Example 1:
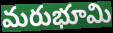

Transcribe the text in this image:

మరుభూమి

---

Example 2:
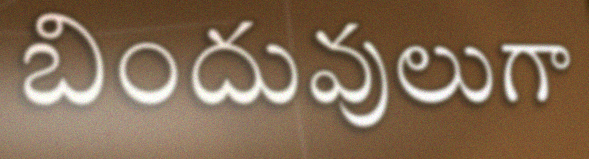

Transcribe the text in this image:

బిందువులుగా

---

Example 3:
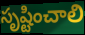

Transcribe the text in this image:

సృష్టించాలి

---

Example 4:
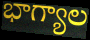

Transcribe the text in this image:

భాగ్యాల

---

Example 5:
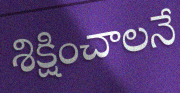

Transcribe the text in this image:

శిక్షించాలనే